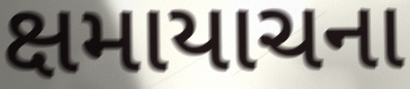
ક્ષમાયાચના